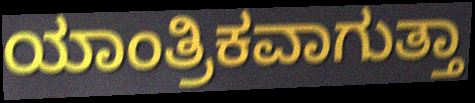
ಯಾಂತ್ರಿಕವಾಗುತ್ತಾ